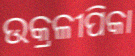
ଉକ୍ରଳୀପିକା